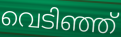
വെടിഞ്ഞ്